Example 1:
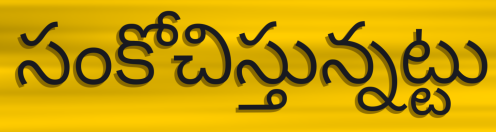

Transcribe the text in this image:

సంకోచిస్తున్నట్టు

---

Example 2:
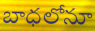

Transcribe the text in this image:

బాధలోనూ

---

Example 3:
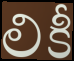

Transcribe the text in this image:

లికీ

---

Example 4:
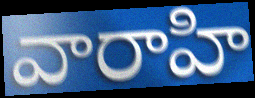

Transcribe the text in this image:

వారాహి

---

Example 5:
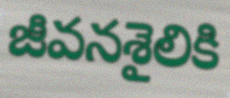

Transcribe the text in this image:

జీవనశైలికి